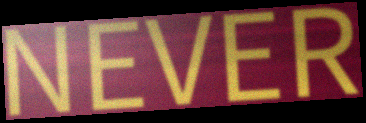
NEVER